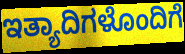
ಇತ್ಯಾದಿಗಳೊಂದಿಗೆ